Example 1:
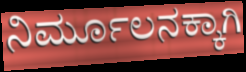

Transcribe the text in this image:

ನಿರ್ಮೂಲನಕ್ಕಾಗಿ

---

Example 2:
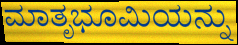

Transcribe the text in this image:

ಮಾತೃಭೂಮಿಯನ್ನು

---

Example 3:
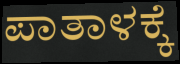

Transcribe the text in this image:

ಪಾತಾಳಕ್ಕೆ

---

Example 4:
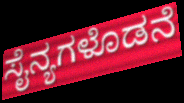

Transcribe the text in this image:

ಸೈನ್ಯಗಳೊಡನೆ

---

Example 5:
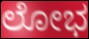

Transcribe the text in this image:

ಲೋಭ